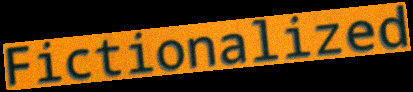
Fictionalized